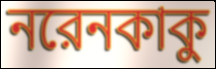
নরেনকাকু